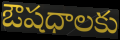
ఔషధాలకు